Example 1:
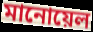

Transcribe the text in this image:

মানোয়েল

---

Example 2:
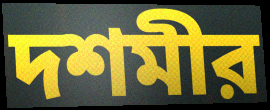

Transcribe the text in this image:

দশমীর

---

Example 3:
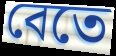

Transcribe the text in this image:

বেতে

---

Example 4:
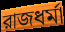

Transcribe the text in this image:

রাজধর্মা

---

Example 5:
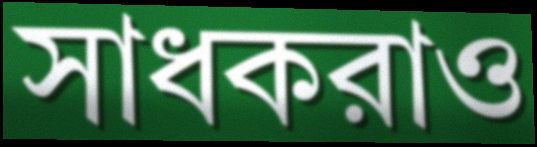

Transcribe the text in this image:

সাধকরাও